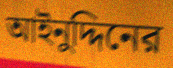
আইনুদ্দিনের